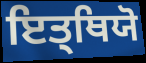
ਇਤ੍ਥਿਯੋ